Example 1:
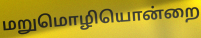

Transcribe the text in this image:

மறுமொழியொன்றை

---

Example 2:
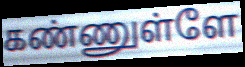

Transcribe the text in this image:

கண்ணுள்ளே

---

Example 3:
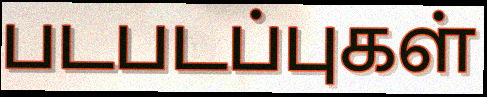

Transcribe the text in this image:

படபடப்புகள்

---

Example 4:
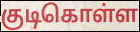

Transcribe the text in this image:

குடிகொள்ள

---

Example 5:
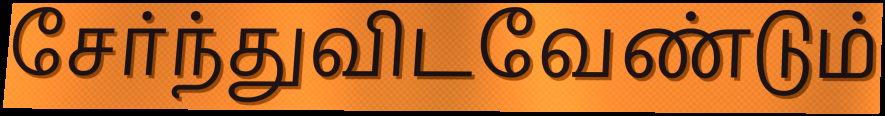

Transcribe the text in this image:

சேர்ந்துவிடவேண்டும்